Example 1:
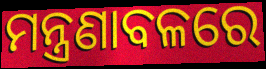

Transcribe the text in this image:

ମନ୍ତ୍ରଣାବଳରେ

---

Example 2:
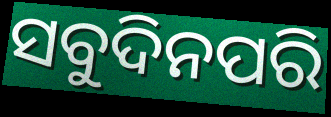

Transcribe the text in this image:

ସବୁଦିନପରି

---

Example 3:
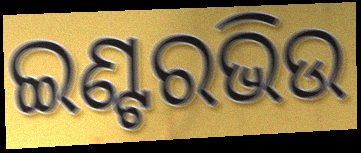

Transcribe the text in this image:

ଇଣ୍ଟରଭିଉ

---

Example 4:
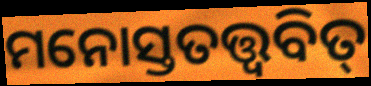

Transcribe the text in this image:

ମନୋସ୍ତତତ୍ତ୍ୱବିତ୍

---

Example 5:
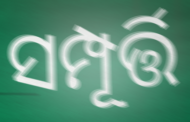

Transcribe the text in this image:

ସମ୍ପୂର୍ତ୍ତି